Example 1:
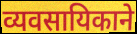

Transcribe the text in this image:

व्यवसायिकाने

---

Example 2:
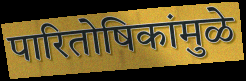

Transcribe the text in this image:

पारितोषिकांमुळे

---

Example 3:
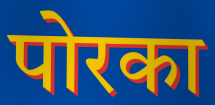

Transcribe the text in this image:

पोरका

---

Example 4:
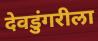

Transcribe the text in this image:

देवडुंगरीला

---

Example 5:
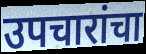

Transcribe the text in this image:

उपचारांचा